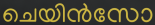
ചെയിൻസോ